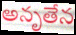
అనృతేన